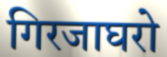
गिरजाघरो